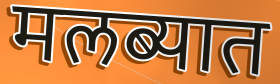
मलब्यात